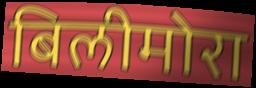
बिलीमोरा